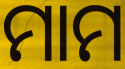
ମାମ